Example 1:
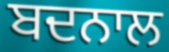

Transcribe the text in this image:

ਬਦਨਾਲ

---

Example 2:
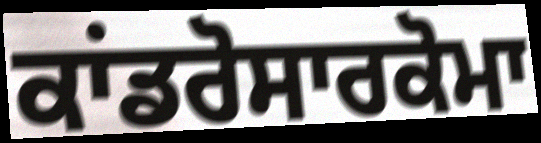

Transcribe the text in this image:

ਕਾਂਡਰੋਸਾਰਕੋਮਾ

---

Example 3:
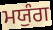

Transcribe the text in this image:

ਮਯੁੰਗ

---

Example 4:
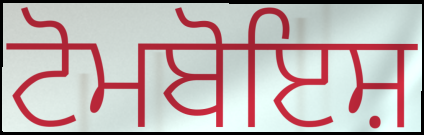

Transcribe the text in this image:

ਟੋਮਬੋਇਸ਼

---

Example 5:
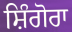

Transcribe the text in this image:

ਸ਼ਿੰਗੋਰਾ